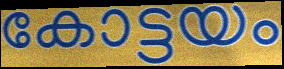
കോട്ടയം